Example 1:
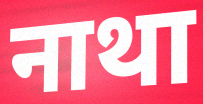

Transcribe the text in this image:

नाथा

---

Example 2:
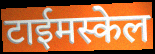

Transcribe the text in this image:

टाईमस्केल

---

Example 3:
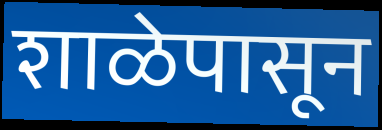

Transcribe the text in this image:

शाळेपासून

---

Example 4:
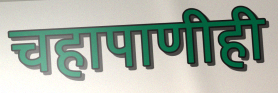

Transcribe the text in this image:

चहापाणीही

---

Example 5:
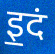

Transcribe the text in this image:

इ॒दं